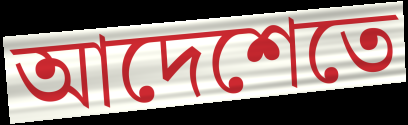
আদেশেতে